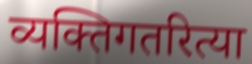
व्यक्तिगतरित्या